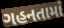
ગહનતામાં